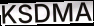
KSDMA